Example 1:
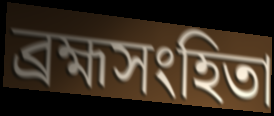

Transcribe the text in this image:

ব্রহ্মসংহিতা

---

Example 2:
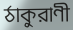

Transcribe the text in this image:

ঠাকুরাণী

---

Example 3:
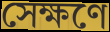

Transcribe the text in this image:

সেক্ষণে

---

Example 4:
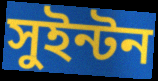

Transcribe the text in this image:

সুইন্টন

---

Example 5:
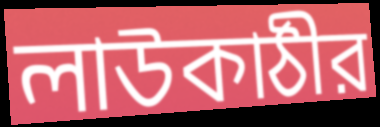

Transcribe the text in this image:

লাউকাঠীর